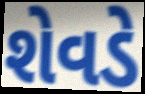
શેવડે